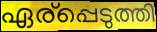
ഏര്പ്പെടുത്തി